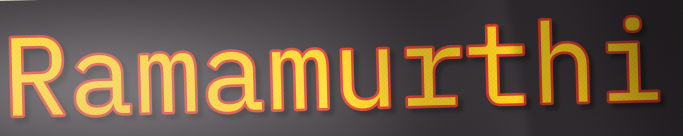
Ramamurthi